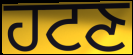
ਹਟਣ